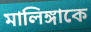
মালিঙ্গাকে